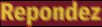
Repondez